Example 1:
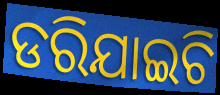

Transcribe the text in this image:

ଡରିଯାଇଚି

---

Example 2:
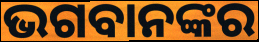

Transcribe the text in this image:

ଭଗବାନଙ୍କର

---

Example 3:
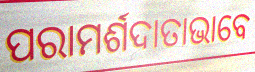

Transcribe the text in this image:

ପରାମର୍ଶଦାତାଭାବେ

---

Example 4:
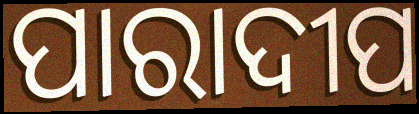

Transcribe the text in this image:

ପାରାଦୀପ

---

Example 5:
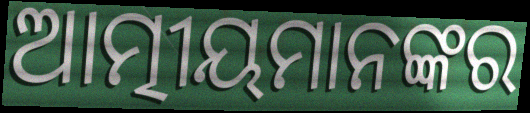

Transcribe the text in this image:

ଆତ୍ମୀୟମାନଙ୍କର